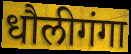
धौलीगंगा